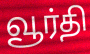
வூர்தி